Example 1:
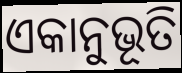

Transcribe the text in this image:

ଏକାନୁଭୂତି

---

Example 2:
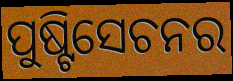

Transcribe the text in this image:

ପୁଷ୍ଟିସେଚନର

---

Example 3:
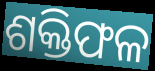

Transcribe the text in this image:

ଶକ୍ତିଫଳ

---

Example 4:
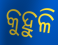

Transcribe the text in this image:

କୁହୁଳି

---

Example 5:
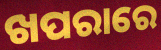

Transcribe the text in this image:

ଖପରାରେ